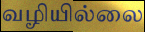
வழியில்லை